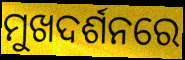
ମୁଖଦର୍ଶନରେ